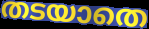
തടയാതെ